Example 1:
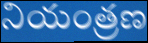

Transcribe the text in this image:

నియంత్రణ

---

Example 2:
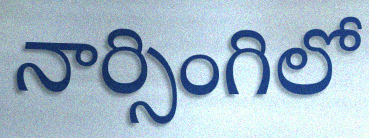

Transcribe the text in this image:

నార్సింగిలో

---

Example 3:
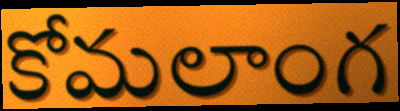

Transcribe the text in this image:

కోమలాంగ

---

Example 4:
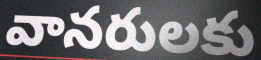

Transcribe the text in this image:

వానరులకు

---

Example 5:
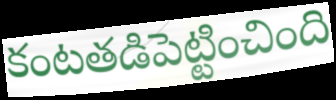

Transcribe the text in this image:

కంటతడిపెట్టించింది